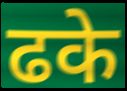
ढके